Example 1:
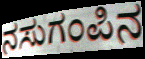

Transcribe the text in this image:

ನಸುಗಂಪಿನ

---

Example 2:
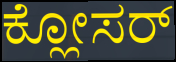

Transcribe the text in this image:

ಕ್ಲೋಸರ್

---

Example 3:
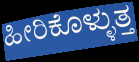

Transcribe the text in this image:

ಹೀರಿಕೊಳ್ಳುತ್ತ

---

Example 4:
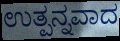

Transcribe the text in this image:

ಉತ್ಪನ್ನವಾದ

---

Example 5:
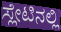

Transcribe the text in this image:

ಸ್ಲೇಟಿನಲ್ಲಿ